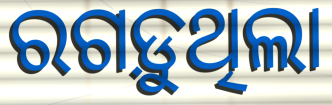
ରଗଡ଼ୁଥିଲା